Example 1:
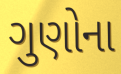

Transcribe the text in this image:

ગુણોના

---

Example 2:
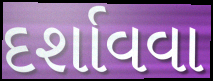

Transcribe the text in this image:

દર્શાવવા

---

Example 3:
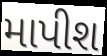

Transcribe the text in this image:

માપીશ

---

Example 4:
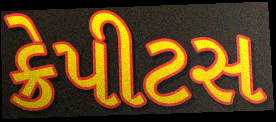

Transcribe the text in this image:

ક્રેપીટસ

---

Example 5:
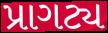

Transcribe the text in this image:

પ્રાગટ્ય